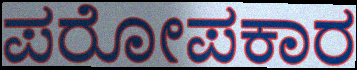
ಪರೋಪಕಾರ